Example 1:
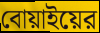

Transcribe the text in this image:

বোয়াইয়ের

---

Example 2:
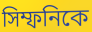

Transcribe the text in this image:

সিম্ফনিকে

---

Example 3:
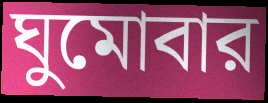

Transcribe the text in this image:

ঘুমোবার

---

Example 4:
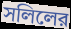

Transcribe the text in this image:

সলিলের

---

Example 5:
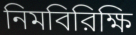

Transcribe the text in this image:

নিমবিরিক্ষি